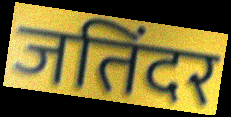
जतिंदर